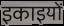
इकाइयों